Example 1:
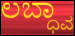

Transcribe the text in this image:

ಲಬ್ಧ್ವಾ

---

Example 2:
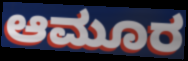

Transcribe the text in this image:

ಆಮೂರ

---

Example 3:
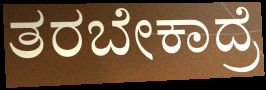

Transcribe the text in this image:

ತರಬೇಕಾದ್ರೆ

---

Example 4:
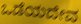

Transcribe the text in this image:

ಒಡೆಯದೇವ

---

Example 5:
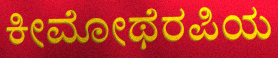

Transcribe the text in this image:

ಕೀಮೋಥೆರಪಿಯ